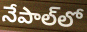
నేపాల్‌లో